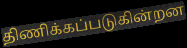
திணிக்கப்படுகின்றன